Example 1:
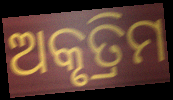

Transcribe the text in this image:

ଅକୃତ୍ରିମ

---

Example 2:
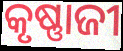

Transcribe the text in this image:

କୃଷ୍ଣାଜୀ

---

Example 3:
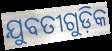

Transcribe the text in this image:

ଯୁବତୀଗୁଡ଼ିକ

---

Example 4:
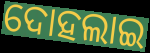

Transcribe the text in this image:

ଦୋହଲାଇ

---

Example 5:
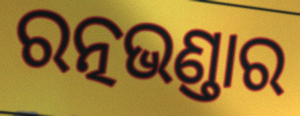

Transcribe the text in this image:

ରତ୍ନଭଣ୍ଡାର